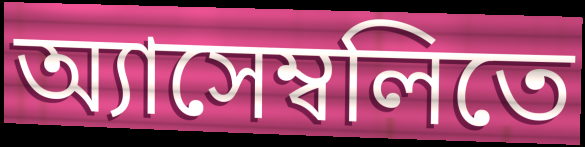
অ্যাসেম্বলিতে